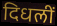
दिधलीं